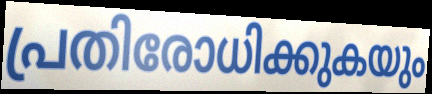
പ്രതിരോധിക്കുകയും